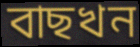
বাছখন